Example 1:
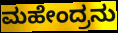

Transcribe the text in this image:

ಮಹೇಂದ್ರನು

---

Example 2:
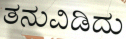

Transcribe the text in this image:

ತನುವಿಡಿದು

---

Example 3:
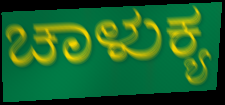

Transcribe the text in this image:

ಚಾಳುಕ್ಯ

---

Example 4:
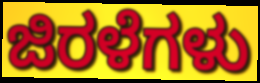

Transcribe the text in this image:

ಜಿರಳೆಗಳು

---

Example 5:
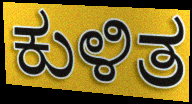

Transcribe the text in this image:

ಕುಳಿತ